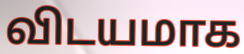
விடயமாக